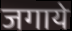
जगाये